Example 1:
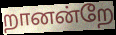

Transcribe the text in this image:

றானன்றே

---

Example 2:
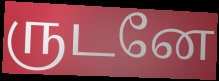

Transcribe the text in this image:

ருடனே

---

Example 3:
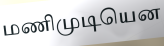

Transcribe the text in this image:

மணிமுடியென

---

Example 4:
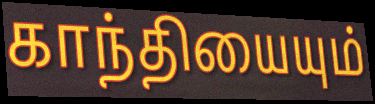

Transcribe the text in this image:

காந்தியையும்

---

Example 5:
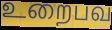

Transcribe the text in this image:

உறைபவ